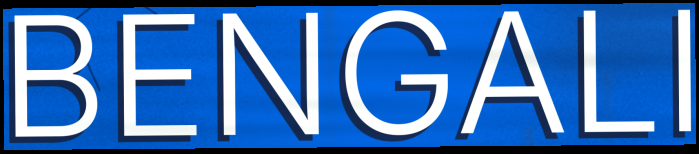
BENGALI